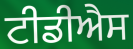
ਟੀਡੀਐਸ